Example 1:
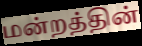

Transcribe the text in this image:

மன்றத்தின்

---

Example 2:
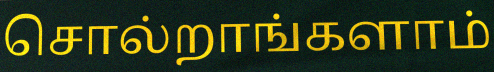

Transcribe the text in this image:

சொல்றாங்களாம்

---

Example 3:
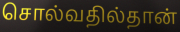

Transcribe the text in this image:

சொல்வதில்தான்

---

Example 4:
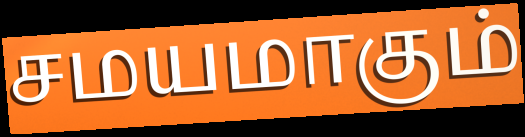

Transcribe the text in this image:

சமயமாகும்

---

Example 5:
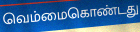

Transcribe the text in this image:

வெம்மைகொண்டது